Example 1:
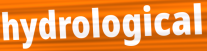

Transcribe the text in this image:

hydrological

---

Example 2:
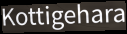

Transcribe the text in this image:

Kottigehara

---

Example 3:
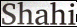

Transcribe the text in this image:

Shahi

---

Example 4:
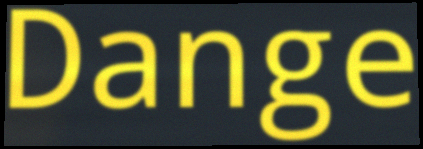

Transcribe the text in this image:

Dange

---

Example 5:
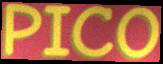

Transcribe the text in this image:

PICO